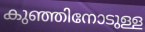
കുഞ്ഞിനോടുള്ള